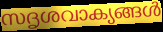
സദൃശവാക്യങ്ങൾ